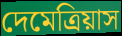
দেমেত্রিয়াস